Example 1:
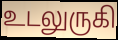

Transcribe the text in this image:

உடலுருகி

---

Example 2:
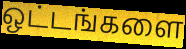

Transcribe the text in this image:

ஒட்டங்களை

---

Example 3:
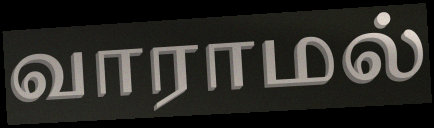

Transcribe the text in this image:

வாராமல்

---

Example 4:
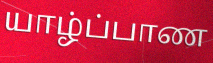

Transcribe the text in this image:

யாழ்ப்பாண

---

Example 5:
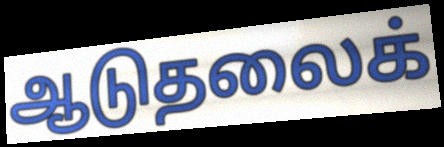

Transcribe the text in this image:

ஆடுதலைக்